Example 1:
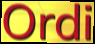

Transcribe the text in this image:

Ordi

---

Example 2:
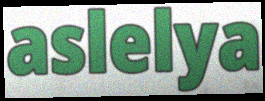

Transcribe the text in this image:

aslelya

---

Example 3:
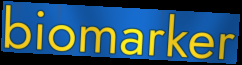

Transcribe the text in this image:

biomarker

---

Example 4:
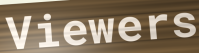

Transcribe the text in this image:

Viewers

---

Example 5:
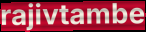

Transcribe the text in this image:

rajivtambe